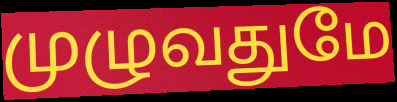
முழுவதுமே